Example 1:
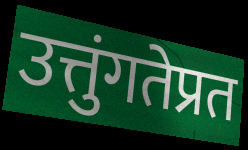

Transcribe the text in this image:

उत्तुंगतेप्रत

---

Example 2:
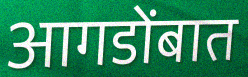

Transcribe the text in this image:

आगडोंबात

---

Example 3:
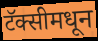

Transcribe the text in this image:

टॅक्सीमधून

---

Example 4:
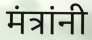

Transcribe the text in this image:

मंत्रांनी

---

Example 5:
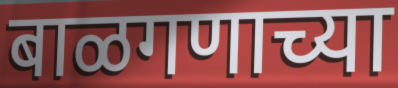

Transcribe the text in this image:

बाळगणाच्या